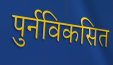
पुर्नविकसित